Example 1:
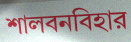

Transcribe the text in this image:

শালবনবিহার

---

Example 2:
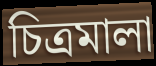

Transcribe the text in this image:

চিত্রমালা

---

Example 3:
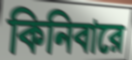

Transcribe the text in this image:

কিনিবারে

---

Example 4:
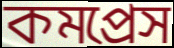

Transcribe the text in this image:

কমপ্রেস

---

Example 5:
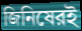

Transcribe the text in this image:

জিনিষেরই